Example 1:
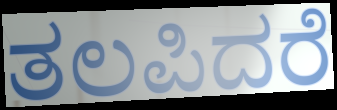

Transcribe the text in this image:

ತಲಪಿದರೆ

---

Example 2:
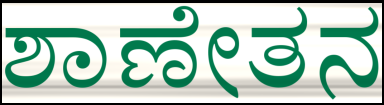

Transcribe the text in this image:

ಶಾಣೇತನ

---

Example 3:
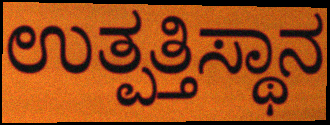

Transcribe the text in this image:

ಉತ್ಪತ್ತಿಸ್ಥಾನ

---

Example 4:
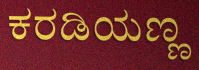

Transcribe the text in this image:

ಕರಡಿಯಣ್ಣ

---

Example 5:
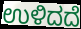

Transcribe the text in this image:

ಉಳಿದದೆ